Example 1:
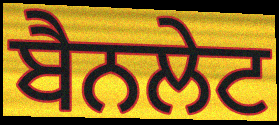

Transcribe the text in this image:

ਬੈਨਲੇਟ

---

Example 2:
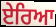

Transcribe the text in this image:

ਏਰਿਆ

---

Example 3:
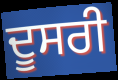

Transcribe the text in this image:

ਦੂਸਰੀ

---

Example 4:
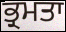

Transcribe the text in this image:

ਭ੍ਰਮਤਾ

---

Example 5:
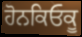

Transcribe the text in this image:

ਹੋਨਕਿਓਕੂ